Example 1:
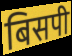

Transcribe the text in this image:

बिसपी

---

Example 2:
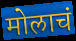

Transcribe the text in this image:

मोलाचं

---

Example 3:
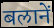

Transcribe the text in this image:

बलानें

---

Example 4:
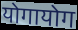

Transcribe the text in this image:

योगायोग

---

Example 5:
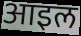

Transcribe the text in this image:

आइल